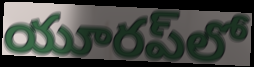
యూరప్‌లో